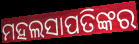
ମହଲସାପତିଙ୍କର